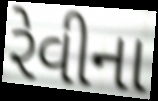
રેવીના